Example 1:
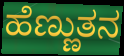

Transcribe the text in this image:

ಹೆಣ್ಣುತನ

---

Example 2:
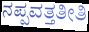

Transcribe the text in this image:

ನಪ್ಪವತ್ತತೀತಿ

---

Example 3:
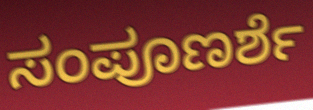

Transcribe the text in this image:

ಸಂಪೂಣರ್ಶೆ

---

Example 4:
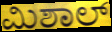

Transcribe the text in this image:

ಮಿಶಾಲ್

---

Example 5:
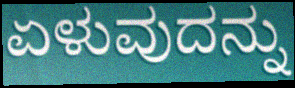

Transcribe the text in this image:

ಏಳುವುದನ್ನು